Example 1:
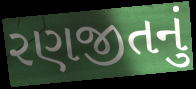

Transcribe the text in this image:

રણજીતનું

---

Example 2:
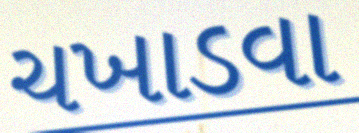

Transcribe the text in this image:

ચખાડવા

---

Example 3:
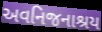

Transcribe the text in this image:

અવનિજનાશ્રય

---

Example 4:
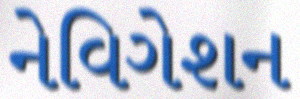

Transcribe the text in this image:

નેવિગેશન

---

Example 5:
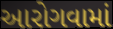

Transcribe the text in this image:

આરોગવામાં